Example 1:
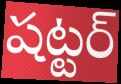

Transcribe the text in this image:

షట్టర్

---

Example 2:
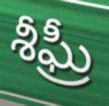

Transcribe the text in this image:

శీఘ్రీ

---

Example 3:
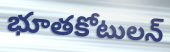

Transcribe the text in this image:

భూతకోటులన్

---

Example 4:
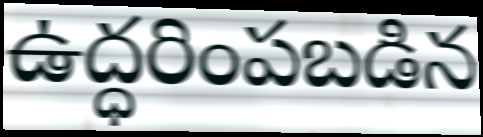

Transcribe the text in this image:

ఉద్ధరింపబడిన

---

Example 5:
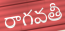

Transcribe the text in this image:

రాగవతీ